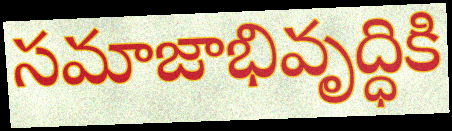
సమాజాభివృద్ధికి